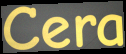
Cera